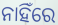
ନାହିଁରେ